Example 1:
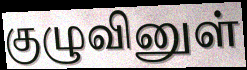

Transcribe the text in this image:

குழுவினுள்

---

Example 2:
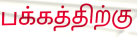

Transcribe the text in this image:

பக்கத்திற்கு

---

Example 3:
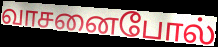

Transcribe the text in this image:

வாசனைபோல்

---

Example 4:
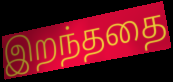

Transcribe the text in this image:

இறந்ததை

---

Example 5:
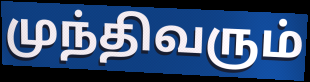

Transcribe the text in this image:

முந்திவரும்